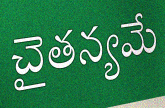
చైతన్యమే